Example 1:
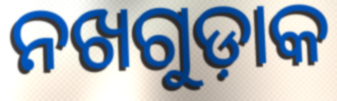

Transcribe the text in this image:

ନଖଗୁଡ଼ାକ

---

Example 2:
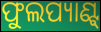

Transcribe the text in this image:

ଫୁଲପ୍ୟାଣ୍ଟ୍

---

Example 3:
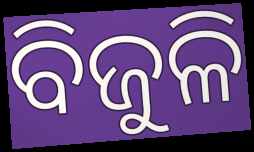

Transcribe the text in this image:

ବିଜୁଳି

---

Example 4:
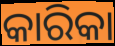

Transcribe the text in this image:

କାରିକା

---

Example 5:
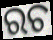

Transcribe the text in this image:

ରଚ